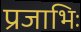
प्रजाभिः